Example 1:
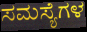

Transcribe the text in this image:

ಸಮಸ್ಯೆಗಳ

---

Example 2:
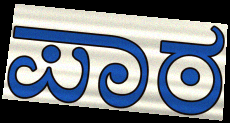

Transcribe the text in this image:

ಪಾಠ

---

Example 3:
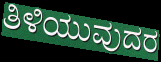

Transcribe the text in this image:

ತಿಳಿಯುವುದರ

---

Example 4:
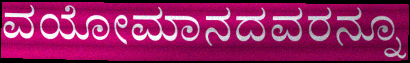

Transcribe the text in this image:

ವಯೋಮಾನದವರನ್ನೂ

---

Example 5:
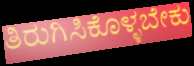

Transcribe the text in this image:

ತಿರುಗಿಸಿಕೊಳ್ಳಬೇಕು